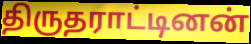
திருதராட்டினன்